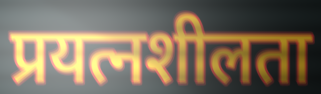
प्रयत्नशीलता